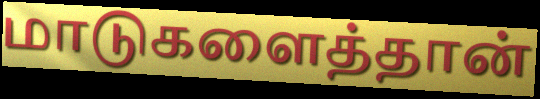
மாடுகளைத்தான்